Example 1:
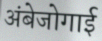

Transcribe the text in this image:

अंबेजोगाई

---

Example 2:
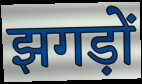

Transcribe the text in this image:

झगड़ों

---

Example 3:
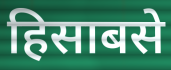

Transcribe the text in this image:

हिसाबसे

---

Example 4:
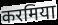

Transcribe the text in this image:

करमिया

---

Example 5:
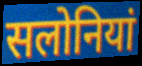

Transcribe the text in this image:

सलोनियां